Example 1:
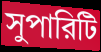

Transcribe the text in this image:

সুপারিটি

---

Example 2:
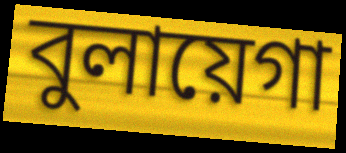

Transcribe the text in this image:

বুলায়েগা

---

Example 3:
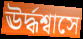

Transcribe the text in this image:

ঊর্দ্ধশ্বাসে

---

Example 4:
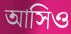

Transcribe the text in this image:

আসিও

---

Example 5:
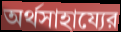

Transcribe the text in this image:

অর্থসাহায্যের